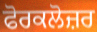
ਫੋਰਕਲੋਜ਼ਰ